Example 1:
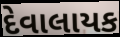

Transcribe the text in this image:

દેવાલાયક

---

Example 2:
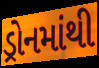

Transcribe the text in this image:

ડ્રોનમાંથી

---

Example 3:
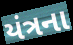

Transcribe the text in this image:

યંત્રના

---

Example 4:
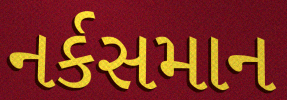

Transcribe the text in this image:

નર્કસમાન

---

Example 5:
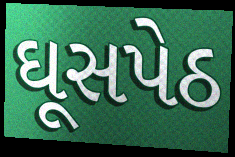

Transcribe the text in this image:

ઘૂસપેઠ